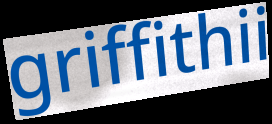
griffithii